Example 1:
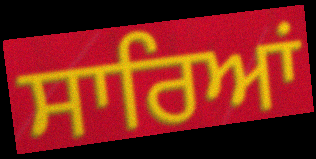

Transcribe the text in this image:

ਸਾਰਿਆਂ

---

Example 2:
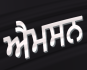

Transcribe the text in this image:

ਐਮਸਨ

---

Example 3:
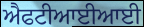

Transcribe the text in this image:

ਐਫਟੀਆਈਆਈ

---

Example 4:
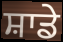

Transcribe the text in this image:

ਸ਼ਾਡੇ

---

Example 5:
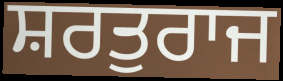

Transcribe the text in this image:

ਸ਼ਰਤੁਰਾਜ